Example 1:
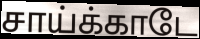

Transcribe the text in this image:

சாய்க்காடே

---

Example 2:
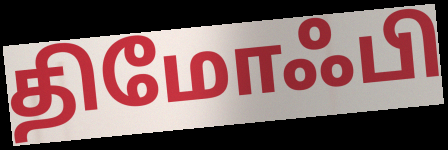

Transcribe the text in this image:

திமோஃபி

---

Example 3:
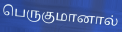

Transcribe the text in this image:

பெருகுமானால்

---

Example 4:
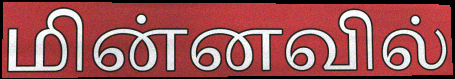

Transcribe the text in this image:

மின்னவில்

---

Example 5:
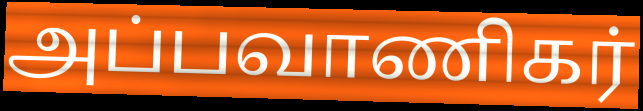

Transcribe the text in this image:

அப்பவாணிகர்